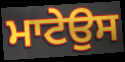
ਮਾਟੇਉਸ